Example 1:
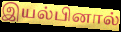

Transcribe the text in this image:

இயல்பினால்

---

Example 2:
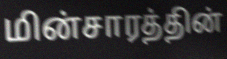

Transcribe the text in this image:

மின்சாரத்தின்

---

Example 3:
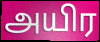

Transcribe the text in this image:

அயிர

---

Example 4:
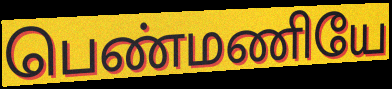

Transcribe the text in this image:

பெண்மணியே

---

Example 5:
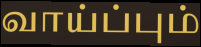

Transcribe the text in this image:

வாய்ப்பும்